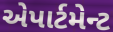
એપાર્ટમેન્ટ